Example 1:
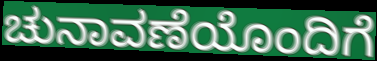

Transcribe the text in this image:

ಚುನಾವಣೆಯೊಂದಿಗೆ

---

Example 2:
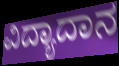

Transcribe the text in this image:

ವಿದ್ಯಾದಾನ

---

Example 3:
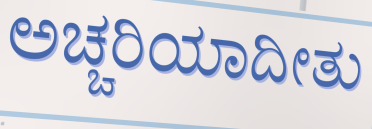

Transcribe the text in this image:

ಅಚ್ಚರಿಯಾದೀತು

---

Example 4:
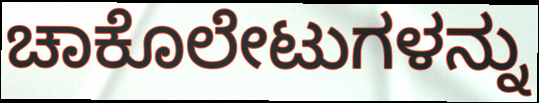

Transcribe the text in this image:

ಚಾಕೊಲೇಟುಗಳನ್ನು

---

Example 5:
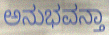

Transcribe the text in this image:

ಅನುಭವನ್ತಾ